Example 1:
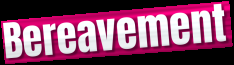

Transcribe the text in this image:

Bereavement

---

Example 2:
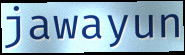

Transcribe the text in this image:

jawayun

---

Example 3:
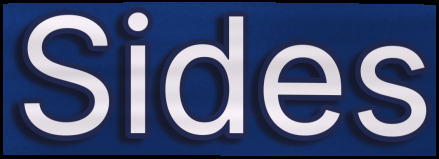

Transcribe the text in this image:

Sides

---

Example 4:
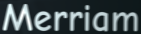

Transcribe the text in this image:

Merriam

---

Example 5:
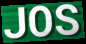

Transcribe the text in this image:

JOS